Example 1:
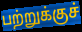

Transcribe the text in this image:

பற்றுக்குச்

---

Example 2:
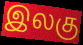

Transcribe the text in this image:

இலகு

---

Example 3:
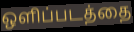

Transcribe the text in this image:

ஒளிப்படத்தை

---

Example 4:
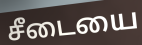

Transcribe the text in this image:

சீடையை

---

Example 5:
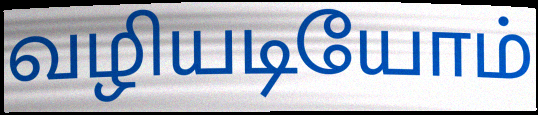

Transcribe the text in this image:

வழியடியோம்